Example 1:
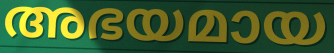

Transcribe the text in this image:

അഭയമായ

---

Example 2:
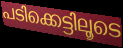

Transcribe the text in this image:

പടിക്കെട്ടിലൂടെ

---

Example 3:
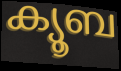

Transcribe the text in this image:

ക്യൂബ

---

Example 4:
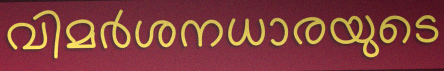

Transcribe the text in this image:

വിമർശനധാരയുടെ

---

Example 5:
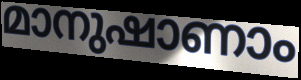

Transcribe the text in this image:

മാനുഷാണാം